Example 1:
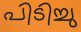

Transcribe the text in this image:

പിടിച്ചു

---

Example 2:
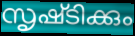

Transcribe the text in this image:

സൃഷ്‌ടിക്കും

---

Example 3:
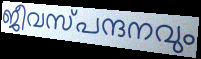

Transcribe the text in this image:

ജീവസ്പന്ദനവും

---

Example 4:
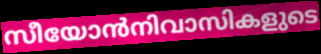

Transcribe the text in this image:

സീയോൻനിവാസികളുടെ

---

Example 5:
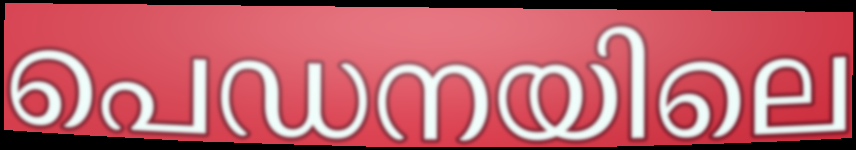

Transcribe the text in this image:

പെഡനയിലെ